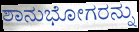
ಶಾನುಭೋಗರನ್ನು